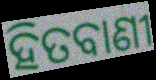
ହିତବାଣୀ